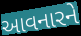
આવનારને